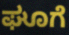
ಘೂಗೆ